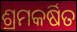
ଶ୍ରମକର୍ଷିତ